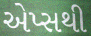
એપ્સથી